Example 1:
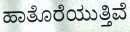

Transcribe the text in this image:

ಹಾತೊರೆಯುತ್ತಿವೆ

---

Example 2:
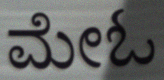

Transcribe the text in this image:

ಮೇಓ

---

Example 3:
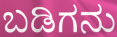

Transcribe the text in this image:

ಬಡಿಗನು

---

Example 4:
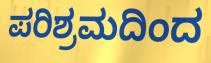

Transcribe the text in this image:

ಪರಿಶ್ರಮದಿಂದ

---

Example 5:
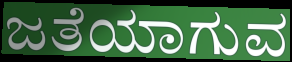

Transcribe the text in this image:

ಜತೆಯಾಗುವ